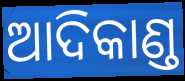
ଆଦିକାଣ୍ଡ